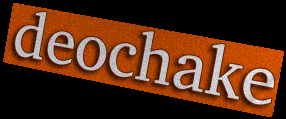
deochake